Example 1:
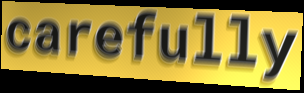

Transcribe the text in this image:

carefully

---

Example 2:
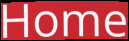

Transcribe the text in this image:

Home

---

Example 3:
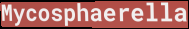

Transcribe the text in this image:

Mycosphaerella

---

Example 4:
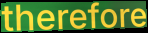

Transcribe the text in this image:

therefore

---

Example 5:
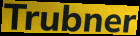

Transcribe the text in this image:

Trubner